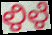
ಳಿಳೆ